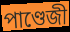
পাণ্ডেজী